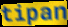
tipan